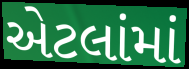
એટલાંમાં